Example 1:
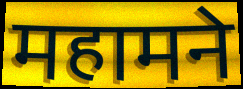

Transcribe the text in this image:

महामने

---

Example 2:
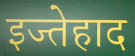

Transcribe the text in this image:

इज्तेहाद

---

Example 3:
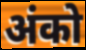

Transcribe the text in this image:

अंको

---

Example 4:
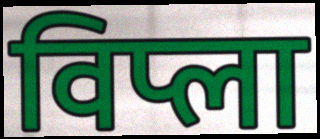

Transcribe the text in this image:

विप्ला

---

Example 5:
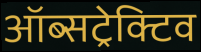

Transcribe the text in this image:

ऑब्सट्रेक्टिव